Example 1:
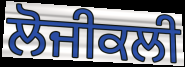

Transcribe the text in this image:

ਲੋਜੀਕਲੀ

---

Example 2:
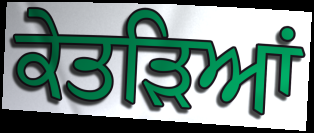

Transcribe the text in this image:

ਕੇਤੜਿਆਂ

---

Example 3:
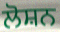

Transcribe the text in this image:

ਲੋਸ਼ਨ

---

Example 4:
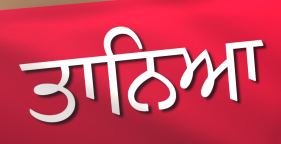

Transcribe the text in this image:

ਤਾਨਿਆ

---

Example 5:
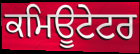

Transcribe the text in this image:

ਕਮਿਊਟੇਟਰ